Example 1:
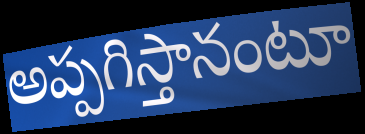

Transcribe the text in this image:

అప్పగిస్తానంటూ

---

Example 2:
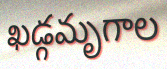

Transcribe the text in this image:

ఖడ్గమృగాల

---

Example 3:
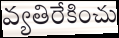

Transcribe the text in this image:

వ్యతిరేకించు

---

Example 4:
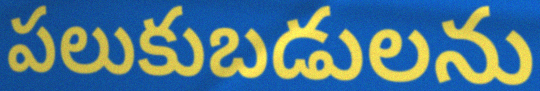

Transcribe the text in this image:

పలుకుబడులను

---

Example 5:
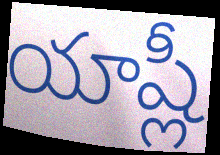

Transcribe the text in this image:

యాష్లీ